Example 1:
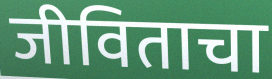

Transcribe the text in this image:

जीविताचा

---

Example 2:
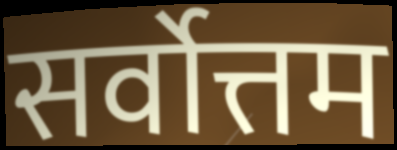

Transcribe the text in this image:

सर्वोत्तम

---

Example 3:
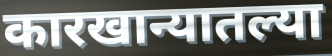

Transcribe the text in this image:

कारखान्यातल्या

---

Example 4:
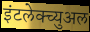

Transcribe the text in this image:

इंटलेक्च्युअल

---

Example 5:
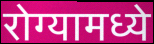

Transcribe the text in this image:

रोग्यामध्ये